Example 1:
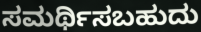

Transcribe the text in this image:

ಸಮರ್ಥಿಸಬಹುದು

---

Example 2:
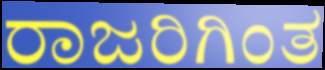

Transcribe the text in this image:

ರಾಜರಿಗಿಂತ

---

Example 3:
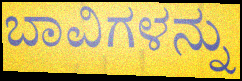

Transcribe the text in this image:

ಬಾವಿಗಳನ್ನು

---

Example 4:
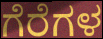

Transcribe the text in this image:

ಗೆರೆಗಳ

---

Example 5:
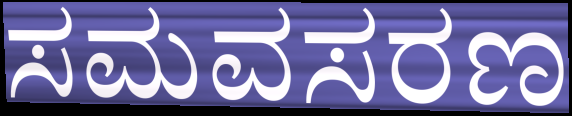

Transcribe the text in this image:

ಸಮವಸರಣ